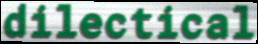
dilectical